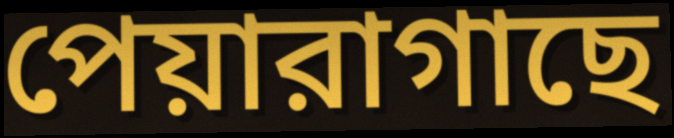
পেয়ারাগাছে